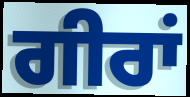
ਗੀਰਾਂ